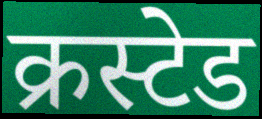
क्रस्टेड